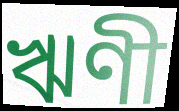
ঋণী